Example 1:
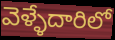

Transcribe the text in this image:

వెళ్ళేదారిలో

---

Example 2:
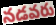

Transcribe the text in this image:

నడవరు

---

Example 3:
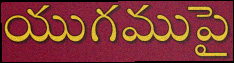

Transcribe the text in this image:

యుగముపై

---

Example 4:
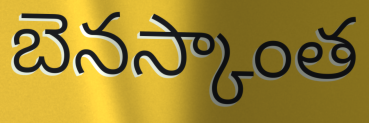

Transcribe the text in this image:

బెనస్కాంత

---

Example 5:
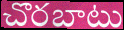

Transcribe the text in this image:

చొరబాటు